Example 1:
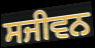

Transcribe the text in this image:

ਸਜੀਵਨ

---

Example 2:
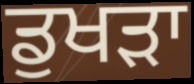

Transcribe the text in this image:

ਡੁਖੜਾ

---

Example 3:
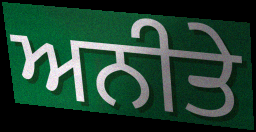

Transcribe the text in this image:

ਅਨੀਤੇ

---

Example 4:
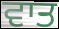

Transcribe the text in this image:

ਵਾਤ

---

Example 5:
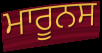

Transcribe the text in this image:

ਮਾਰੂਨਸ